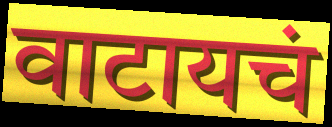
वाटायचं